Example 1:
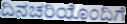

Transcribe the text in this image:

ದಿನಚರಿಯೊಂದಿಗೆ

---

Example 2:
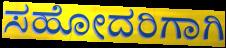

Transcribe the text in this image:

ಸಹೋದರಿಗಾಗಿ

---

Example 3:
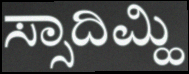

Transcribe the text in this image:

ಸ್ಸಾದಿಮ್ಹಿ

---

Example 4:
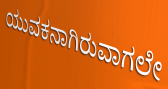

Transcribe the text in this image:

ಯುವಕನಾಗಿರುವಾಗಲೇ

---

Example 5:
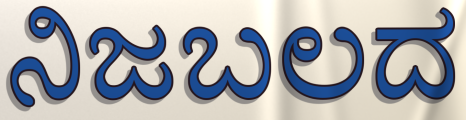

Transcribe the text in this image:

ನಿಜಬಲದ